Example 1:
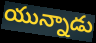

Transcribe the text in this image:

యున్నాడు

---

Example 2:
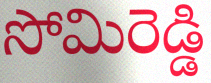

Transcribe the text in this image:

సోమిరెడ్డి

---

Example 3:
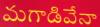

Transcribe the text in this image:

మగాడివేనా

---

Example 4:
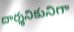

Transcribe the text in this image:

దార్శనికునిగా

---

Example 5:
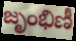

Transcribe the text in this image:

జృంభిణీ